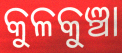
କୁଳକୁଞ୍ଚା